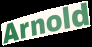
Arnold